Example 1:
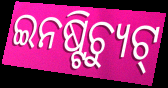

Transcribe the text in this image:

ଇନଷ୍ଟିଚ୍ୟୁଟ୍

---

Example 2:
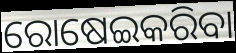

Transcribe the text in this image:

ରୋଷେଇକରିବା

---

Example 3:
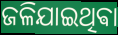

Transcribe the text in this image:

ଜଳିଯାଇଥିଵା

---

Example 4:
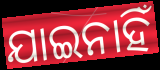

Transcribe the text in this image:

ଯାଇନାହିଁ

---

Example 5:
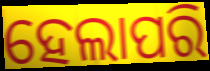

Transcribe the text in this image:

ହେଲାପରି